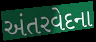
અંતરવેદના